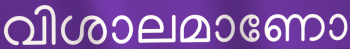
വിശാലമാണോ